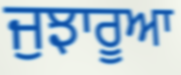
ਜੁਝਾਰੂਆ